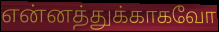
என்னத்துக்காகவோ